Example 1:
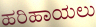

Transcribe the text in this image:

ಹರಿಹಾಯಲು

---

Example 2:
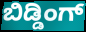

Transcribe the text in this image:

ಬಿಡ್ಡಿಂಗ್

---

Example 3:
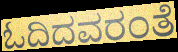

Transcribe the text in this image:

ಓದಿದವರಂತೆ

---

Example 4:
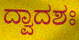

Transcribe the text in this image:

ದ್ವಾದಶಃ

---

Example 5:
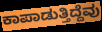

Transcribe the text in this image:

ಕಾಪಾಡುತ್ತಿದ್ದೆವು